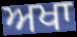
ਅਖਾ